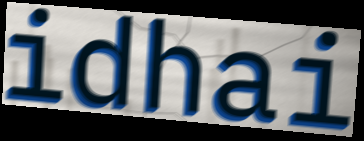
idhai